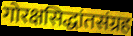
गोरक्षसिद्धांतसंग्रह